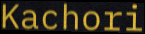
Kachori